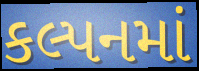
કલ્પનમાં